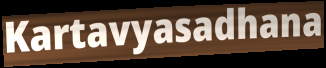
Kartavyasadhana